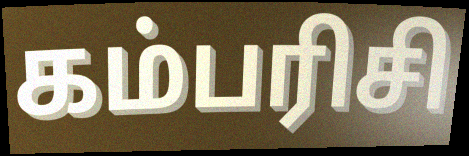
கம்பரிசி